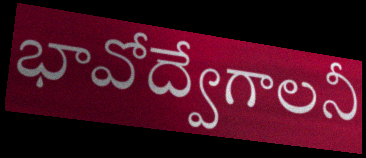
భావోద్వేగాలనీ